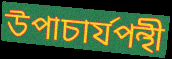
উপাচার্যপন্থী